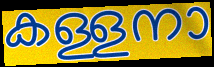
കള്ളനാ